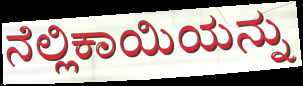
ನೆಲ್ಲಿಕಾಯಿಯನ್ನು